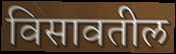
विसावतील